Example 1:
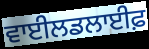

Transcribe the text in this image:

ਵਾਈਲਡਲਾਈਫ਼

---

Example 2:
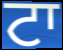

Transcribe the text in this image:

ਟਾ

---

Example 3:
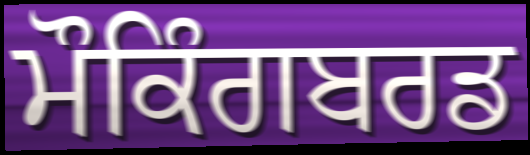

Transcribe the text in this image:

ਮੌਕਿੰਗਬਰਡ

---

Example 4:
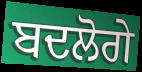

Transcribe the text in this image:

ਬਦਲੋਗੇ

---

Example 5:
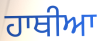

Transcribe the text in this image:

ਹਾਥੀਆ